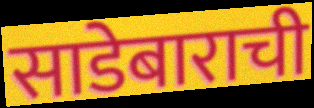
साडेबाराची